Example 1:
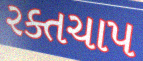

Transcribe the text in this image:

રક્તચાપ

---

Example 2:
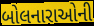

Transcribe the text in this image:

બોલનારાઓની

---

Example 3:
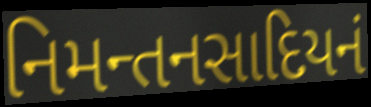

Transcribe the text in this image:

નિમન્તનસાદિયનં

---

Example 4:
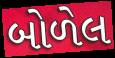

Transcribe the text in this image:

બોળેલ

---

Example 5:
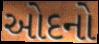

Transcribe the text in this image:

ઓદનો